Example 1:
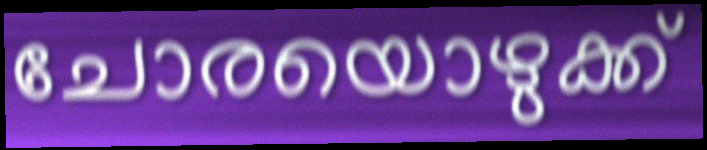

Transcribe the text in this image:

ചോരയൊഴുക്ക്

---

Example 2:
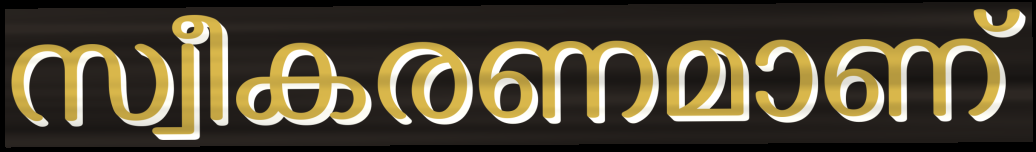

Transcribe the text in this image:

സ്വീകരണമാണ്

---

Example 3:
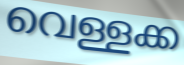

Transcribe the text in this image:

വെള്ളക്ക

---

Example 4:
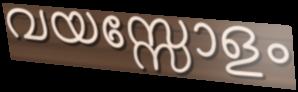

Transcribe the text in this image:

വയസ്സോളം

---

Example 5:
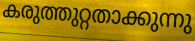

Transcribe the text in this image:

കരുത്തുറ്റതാക്കുന്നു